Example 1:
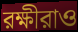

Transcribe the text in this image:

রক্ষীরাও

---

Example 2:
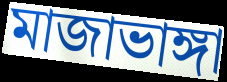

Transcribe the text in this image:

মাজাভাঙ্গা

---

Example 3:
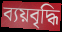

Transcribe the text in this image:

ব্যয়বৃদ্ধি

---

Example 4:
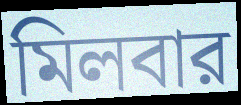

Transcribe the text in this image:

মিলবার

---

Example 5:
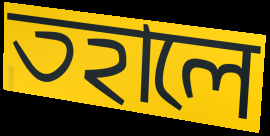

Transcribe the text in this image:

তহালে